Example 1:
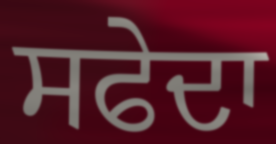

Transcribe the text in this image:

ਸਫੇਦਾ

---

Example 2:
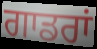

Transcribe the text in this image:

ਗਾਡਰਾਂ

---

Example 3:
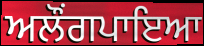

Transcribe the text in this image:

ਅਲੌਂਗਪਾਇਆ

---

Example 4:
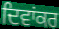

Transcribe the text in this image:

ਦਿਵਾਂਕਰ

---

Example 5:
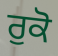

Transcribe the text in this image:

ਰੁਕੋ